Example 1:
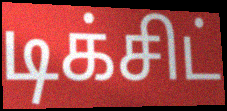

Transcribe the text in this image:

டிக்சிட்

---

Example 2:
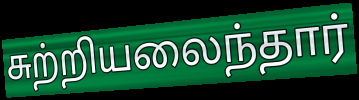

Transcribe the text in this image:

சுற்றியலைந்தார்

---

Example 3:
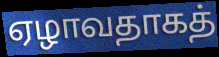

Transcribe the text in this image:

ஏழாவதாகத்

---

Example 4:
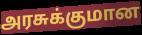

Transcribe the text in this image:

அரசுக்குமான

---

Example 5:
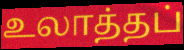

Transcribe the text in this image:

உலாத்தப்